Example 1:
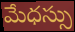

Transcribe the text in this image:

మేధస్సు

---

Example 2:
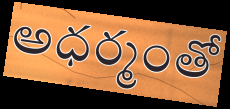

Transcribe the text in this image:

అధర్మంతో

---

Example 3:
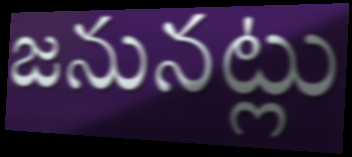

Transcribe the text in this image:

జనునట్లు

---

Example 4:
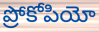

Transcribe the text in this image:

ప్రోకోపియో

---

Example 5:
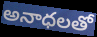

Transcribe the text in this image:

అనాధలతో